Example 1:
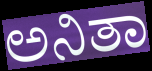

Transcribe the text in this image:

ಅನಿತಾ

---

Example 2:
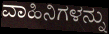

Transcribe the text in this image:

ವಾಹಿನಿಗಳನ್ನು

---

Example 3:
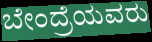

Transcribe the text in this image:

ಬೇಂದ್ರೆಯವರು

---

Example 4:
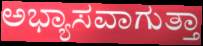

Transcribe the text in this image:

ಅಭ್ಯಾಸವಾಗುತ್ತಾ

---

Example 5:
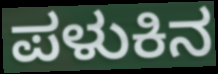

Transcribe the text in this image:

ಪಳುಕಿನ